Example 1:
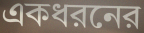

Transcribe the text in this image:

একধরনের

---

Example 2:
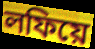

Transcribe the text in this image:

লফিয়ে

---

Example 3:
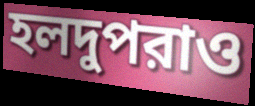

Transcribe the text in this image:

হলদুপরাও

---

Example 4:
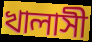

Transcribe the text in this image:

খালাসী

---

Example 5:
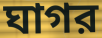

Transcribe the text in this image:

ঘাগর